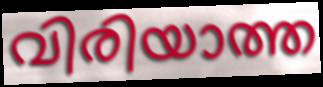
വിരിയാത്ത